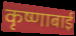
कृष्णाबाई